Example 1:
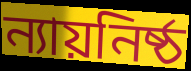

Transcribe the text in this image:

ন্যায়নিষ্ঠ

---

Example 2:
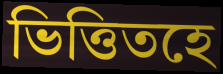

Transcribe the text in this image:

ভিত্তিতহে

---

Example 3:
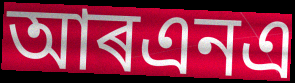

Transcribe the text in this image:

আৰএনএ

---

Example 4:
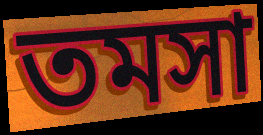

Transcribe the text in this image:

তমসা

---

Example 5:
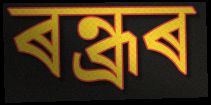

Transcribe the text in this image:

ৰন্ধ্ৰৰ